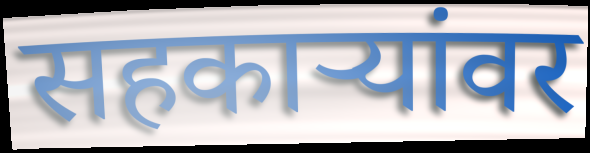
सहकार्‍यांवर